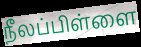
நீலப்பிள்ளை